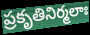
ప్రకృతినిర్మలాః